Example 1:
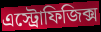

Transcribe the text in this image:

এস্ট্রোফিজিক্স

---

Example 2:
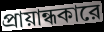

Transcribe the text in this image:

প্রায়ান্ধকারে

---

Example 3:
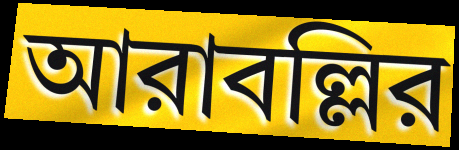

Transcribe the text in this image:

আরাবল্লির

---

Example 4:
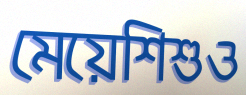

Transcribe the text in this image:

মেয়েশিশুও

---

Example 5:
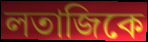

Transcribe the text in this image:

লতাজিকে